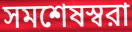
সমশেষস্বরা